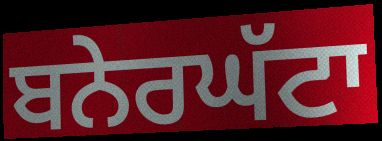
ਬਨੇਰਘੱਟਾ